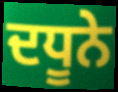
ਦਧੂਨੇ